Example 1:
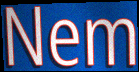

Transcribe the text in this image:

Nem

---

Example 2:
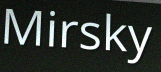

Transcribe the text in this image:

Mirsky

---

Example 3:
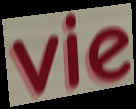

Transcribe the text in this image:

vie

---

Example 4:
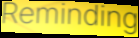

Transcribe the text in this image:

Reminding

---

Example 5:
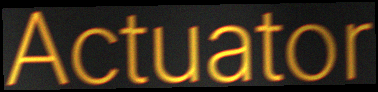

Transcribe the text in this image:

Actuator